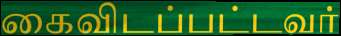
கைவிடப்பட்டவர்